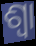
ଶ୍ୱା